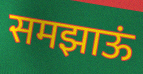
समझाऊं